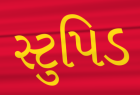
સ્ટુપિડ